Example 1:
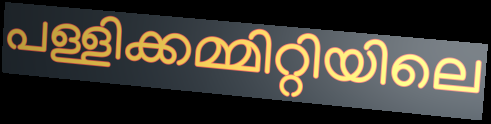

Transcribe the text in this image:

പള്ളിക്കമ്മിറ്റിയിലെ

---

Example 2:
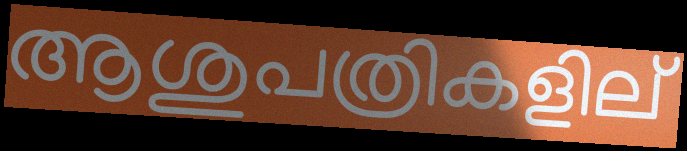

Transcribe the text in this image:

ആശുപത്രികളില്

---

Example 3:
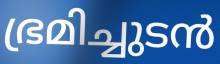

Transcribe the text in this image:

ഭ്രമിച്ചുടൻ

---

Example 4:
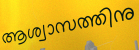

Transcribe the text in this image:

ആശ്വാസത്തിനു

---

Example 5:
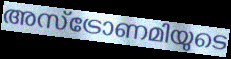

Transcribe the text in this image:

അസ്ട്രോണമിയുടെ